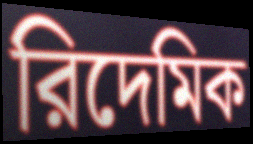
রিদেমিক